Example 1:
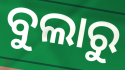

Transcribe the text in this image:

ବୁଲାରୁ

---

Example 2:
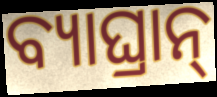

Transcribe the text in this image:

ବ୍ୟାଘ୍ରାନ୍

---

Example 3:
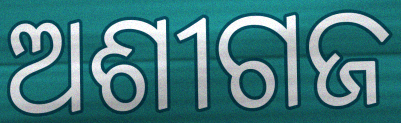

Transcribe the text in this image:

ଅଶୀଗଜ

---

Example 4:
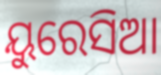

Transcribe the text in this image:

ୟୁରେସିଆ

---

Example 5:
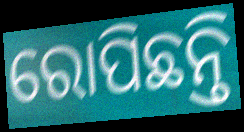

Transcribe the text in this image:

ରୋପିଛନ୍ତି